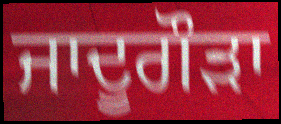
ਜਾਦੂਗੌੜਾ